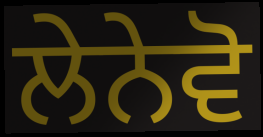
ਲੇਨੇਵੋ